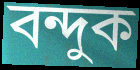
বন্দুক